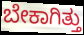
ಬೇಕಾಗಿತ್ತು